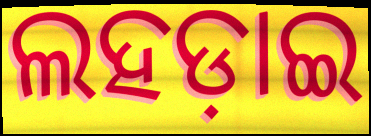
ଲହଡ଼ାଇ